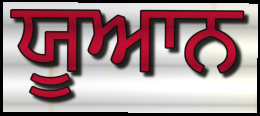
ਯੂਆਨ